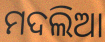
ମଦଲିଆ